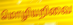
மொழியறிவை